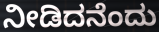
ನೀಡಿದನೆಂದು